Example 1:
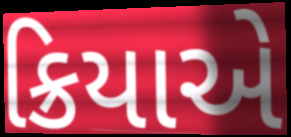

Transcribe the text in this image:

ક્રિયાએ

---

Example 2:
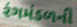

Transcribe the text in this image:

રંગમંડળની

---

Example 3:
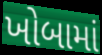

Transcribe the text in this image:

ખોબામાં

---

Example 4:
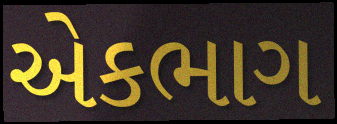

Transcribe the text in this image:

એકભાગ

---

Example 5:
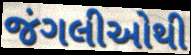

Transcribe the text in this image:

જંગલીઓથી